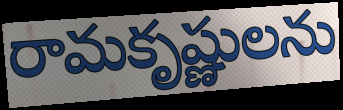
రామకృష్ణులను